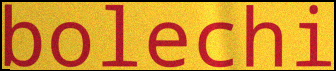
bolechi